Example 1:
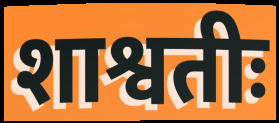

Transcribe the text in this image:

शाश्वतीः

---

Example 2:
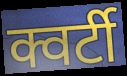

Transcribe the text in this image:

क्वर्टी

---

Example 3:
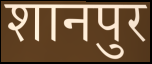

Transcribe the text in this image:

शानपुर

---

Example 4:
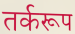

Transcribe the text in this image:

तर्करूप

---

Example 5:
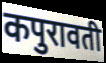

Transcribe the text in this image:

कपुरावती